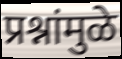
प्रश्नांमुळे